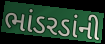
ભાંડરડાંની